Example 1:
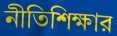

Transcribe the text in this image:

নীতিশিক্ষার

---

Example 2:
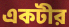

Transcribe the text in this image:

একটীর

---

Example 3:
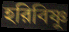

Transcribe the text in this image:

হরিবিষ্ণু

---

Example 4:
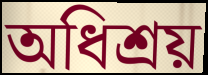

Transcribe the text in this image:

অধিশ্রয়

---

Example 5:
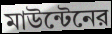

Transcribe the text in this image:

মাউন্টেনের